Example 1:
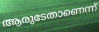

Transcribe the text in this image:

ആരുടേതാണെന്ന്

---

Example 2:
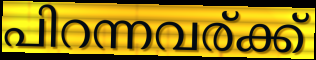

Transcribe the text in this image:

പിറന്നവര്ക്ക്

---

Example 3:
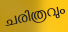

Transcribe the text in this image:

ചരിത്രവും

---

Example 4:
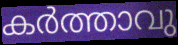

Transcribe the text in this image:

കർത്താവു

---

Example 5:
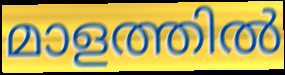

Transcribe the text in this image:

മാളത്തിൽ